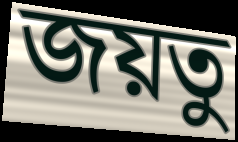
জয়তু